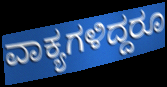
ವಾಕ್ಯಗಳಿದ್ದರೂ